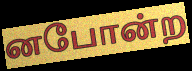
னபோன்ற